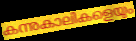
കന്നുകാലികളെയും